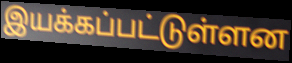
இயக்கப்பட்டுள்ளன